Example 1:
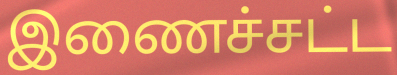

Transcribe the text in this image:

இணைச்சட்ட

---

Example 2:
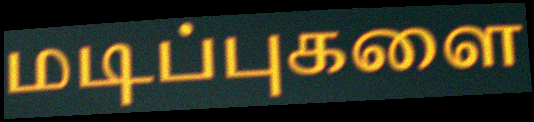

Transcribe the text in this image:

மடிப்புகளை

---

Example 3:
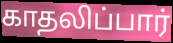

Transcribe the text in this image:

காதலிப்பார்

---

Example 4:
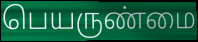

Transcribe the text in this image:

பெயருண்மை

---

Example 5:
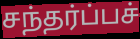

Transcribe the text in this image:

சந்தர்ப்பச்